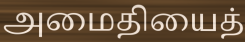
அமைதியைத்